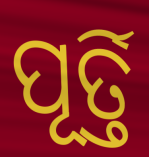
ପୂର୍ତ୍ତି